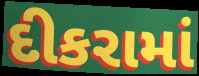
દીકરામાં